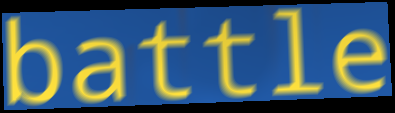
battle